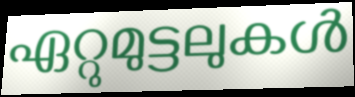
ഏറ്റുമുട്ടലുകൾ